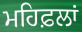
ਮਹਿਫ਼ਲਾਂ